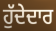
ਹੁੱਦੇਦਾਰ